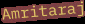
Amritaraj